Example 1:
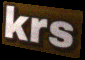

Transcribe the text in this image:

krs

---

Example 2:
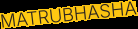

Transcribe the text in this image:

MATRUBHASHA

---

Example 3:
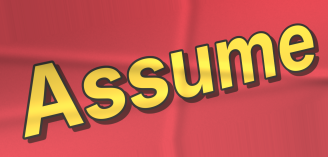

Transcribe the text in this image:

Assume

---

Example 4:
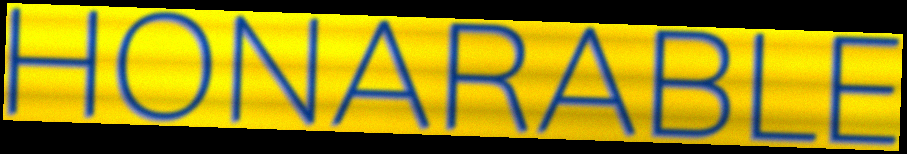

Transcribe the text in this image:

HONARABLE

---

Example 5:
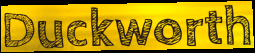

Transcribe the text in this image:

Duckworth